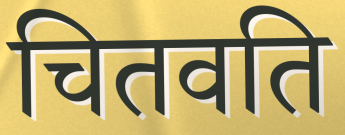
चितवति